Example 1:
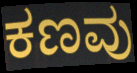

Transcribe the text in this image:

ಕಣವು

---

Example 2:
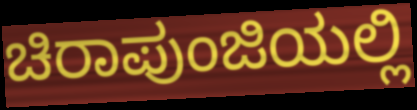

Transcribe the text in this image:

ಚಿರಾಪುಂಜಿಯಲ್ಲಿ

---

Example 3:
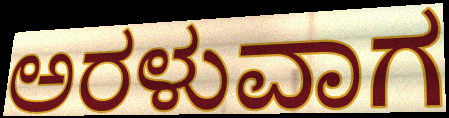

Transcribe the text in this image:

ಅರಳುವಾಗ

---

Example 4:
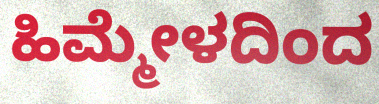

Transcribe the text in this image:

ಹಿಮ್ಮೇಳದಿಂದ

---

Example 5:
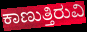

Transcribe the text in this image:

ಕಾಣುತ್ತಿರುವಿ